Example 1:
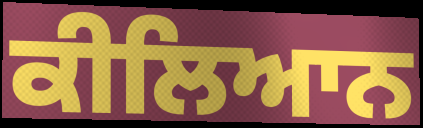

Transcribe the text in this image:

ਕੀਲਿਆਨ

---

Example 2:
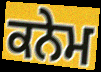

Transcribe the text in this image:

ਕਨੇਮ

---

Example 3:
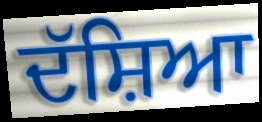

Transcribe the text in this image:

ਦੱਸ਼ਿਆ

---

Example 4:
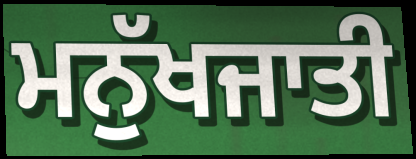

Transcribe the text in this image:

ਮਨੁੱਖਜਾਤੀ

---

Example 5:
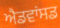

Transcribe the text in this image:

ਐਡਵਾਂਸਡ